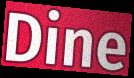
Dine